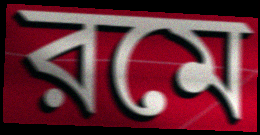
রমে